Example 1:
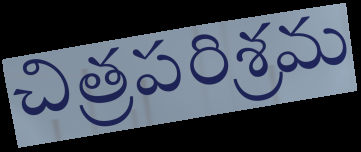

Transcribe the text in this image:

చిత్రపరిశ్రమ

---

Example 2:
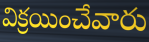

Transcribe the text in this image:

విక్రయించేవారు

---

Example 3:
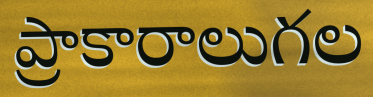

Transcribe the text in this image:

ప్రాకారాలుగల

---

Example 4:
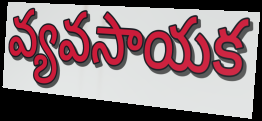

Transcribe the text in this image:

వ్యవసాయక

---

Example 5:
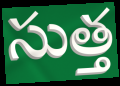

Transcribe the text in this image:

సుత్త